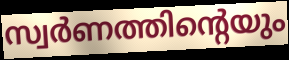
സ്വർണത്തിന്റെയും